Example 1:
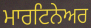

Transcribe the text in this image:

ਮਾਰਟਿਨੇਅਰ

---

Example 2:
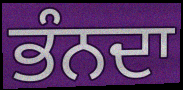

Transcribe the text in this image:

ਭੰਨਦਾ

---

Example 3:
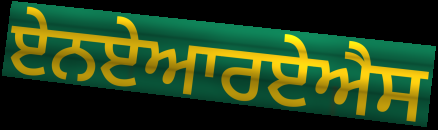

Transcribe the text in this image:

ਏਨਏਆਰਏਐਸ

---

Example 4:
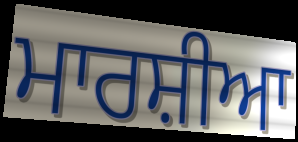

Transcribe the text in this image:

ਮਾਰਸ਼ੀਆ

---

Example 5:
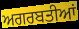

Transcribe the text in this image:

ਅਗਰਬਤੀਆਂ